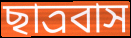
ছাত্রবাস